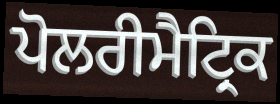
ਪੋਲਰੀਮੈਟ੍ਰਿਕ